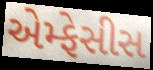
એમ્ફેસીસ